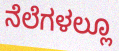
ನೆಲೆಗಳಲ್ಲೂ